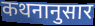
कथनानुसार